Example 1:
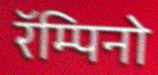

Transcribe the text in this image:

रॅम्पिनो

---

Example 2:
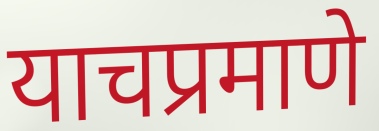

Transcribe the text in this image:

याचप्रमाणे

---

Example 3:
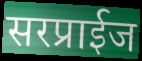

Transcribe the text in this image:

सरप्राईज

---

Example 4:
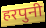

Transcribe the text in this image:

हरपुनी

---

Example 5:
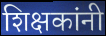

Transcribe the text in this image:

शिक्षकांनी